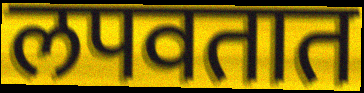
लपवतात